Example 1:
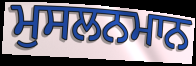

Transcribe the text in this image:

ਮੁਸਲਨਮਾਨ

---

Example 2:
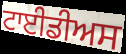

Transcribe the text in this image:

ਟਾਈਡੀਅਸ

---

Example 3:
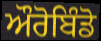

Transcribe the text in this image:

ਔਰੋਬਿੰਡੋ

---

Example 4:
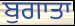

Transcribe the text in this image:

ਬੁਗਾਤਾ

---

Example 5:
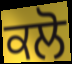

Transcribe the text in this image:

ਕਲੋ